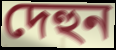
দেহুন